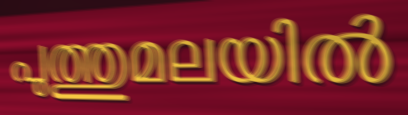
പുത്തുമലയിൽ